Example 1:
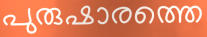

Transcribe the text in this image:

പുരുഷാരത്തെ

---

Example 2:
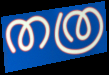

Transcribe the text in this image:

തത്ര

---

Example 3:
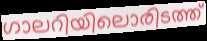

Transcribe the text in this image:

ഗാലറിയിലൊരിടത്ത്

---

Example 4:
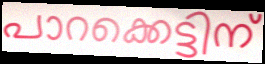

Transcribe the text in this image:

പാറക്കെട്ടിന്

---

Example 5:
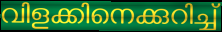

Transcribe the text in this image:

വിളക്കിനെക്കുറിച്ച്